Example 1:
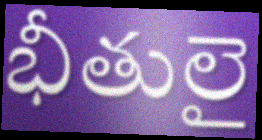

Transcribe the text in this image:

భీతులై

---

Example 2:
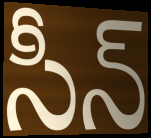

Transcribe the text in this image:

సీన్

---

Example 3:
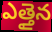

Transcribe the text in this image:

ఎత్తైన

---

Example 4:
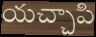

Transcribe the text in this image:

యచ్చాపి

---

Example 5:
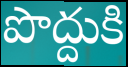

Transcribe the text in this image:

పొద్దుకి